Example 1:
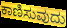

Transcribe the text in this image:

ಕಾಣಿಸುವುದು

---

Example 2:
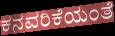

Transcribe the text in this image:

ಕನವರಿಕೆಯಂತೆ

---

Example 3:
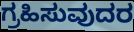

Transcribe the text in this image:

ಗ್ರಹಿಸುವುದರ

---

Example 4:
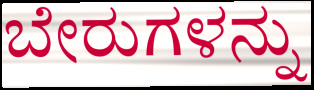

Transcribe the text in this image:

ಬೇರುಗಳನ್ನು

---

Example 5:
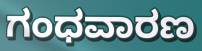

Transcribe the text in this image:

ಗಂಧವಾರಣ